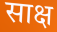
साक्ष